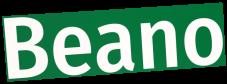
Beano